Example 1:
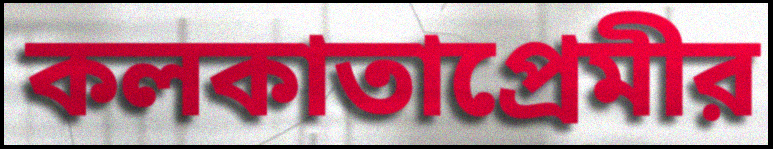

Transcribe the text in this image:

কলকাতাপ্রেমীর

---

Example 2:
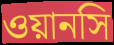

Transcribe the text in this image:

ওয়ানসি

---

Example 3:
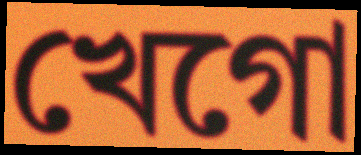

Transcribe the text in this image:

খেগো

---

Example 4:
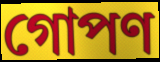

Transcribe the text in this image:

গোপণ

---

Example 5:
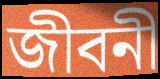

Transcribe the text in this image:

জীবনী